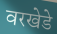
वरखेडे